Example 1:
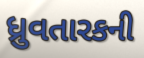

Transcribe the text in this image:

ધ્રુવતારકની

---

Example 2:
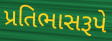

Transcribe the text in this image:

પ્રતિભાસરૂપે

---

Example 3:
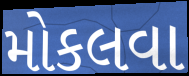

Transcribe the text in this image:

મોકલવા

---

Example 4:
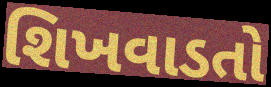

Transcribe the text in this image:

શિખવાડતો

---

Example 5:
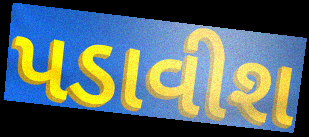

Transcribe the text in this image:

પડાવીશ